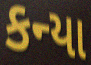
કન્યા